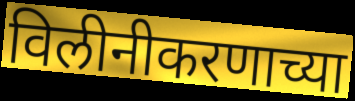
विलीनीकरणाच्या